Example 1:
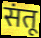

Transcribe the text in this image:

संतू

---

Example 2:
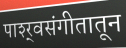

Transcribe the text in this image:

पाश्र्वसंगीतातून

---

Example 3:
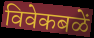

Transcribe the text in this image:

विवेकबळें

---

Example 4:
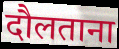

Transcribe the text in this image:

दौलताना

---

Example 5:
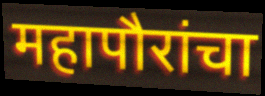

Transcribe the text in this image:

महापौरांचा